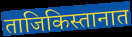
ताजिकिस्तानात